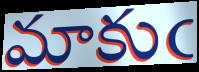
మాకుఁ